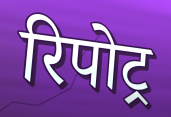
रिपोट्र